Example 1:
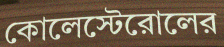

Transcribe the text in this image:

কোলেস্টেরোলের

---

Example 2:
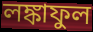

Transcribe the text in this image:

লঙ্কাফুল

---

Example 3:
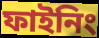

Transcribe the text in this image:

ফাইনিং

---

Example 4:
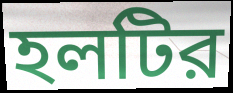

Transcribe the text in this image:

হলটির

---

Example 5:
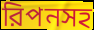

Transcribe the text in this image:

রিপনসহ